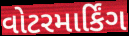
વોટરમાર્કિંગ